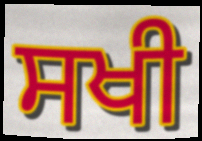
ਸਖੀ